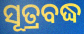
ସୂତ୍ରବଦ୍ଧ